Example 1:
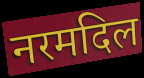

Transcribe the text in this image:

नरमदिल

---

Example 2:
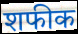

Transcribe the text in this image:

शफीक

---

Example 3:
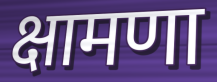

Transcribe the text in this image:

क्षामणा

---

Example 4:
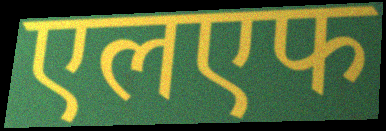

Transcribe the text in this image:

एलएफ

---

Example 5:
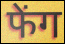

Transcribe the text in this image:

फेंग